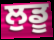
ਲੁਡੂ